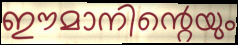
ഈമാനിന്റെയും